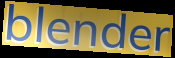
blender